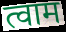
त्वाम